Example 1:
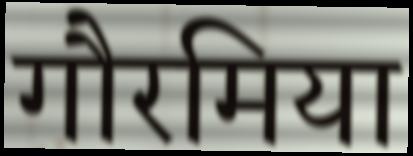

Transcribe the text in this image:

गौरमिया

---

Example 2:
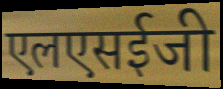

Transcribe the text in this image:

एलएसईजी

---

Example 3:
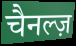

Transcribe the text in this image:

चैनल्ज़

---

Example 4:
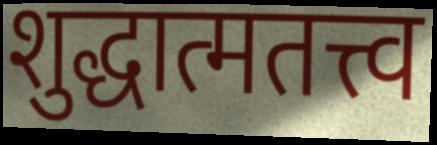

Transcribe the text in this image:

शुद्धात्मतत्त्व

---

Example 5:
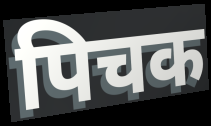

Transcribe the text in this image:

पिचक